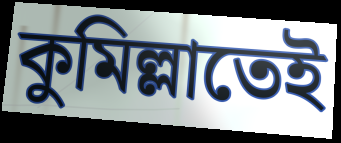
কুমিল্লাতেই